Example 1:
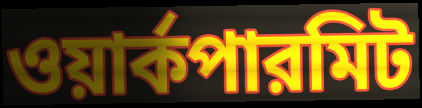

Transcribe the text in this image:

ওয়ার্কপারমিট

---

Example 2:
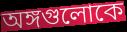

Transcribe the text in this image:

অঙ্গগুলোকে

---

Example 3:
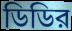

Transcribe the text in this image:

ডিডির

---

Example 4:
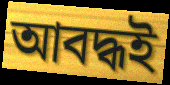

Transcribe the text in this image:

আবদ্ধই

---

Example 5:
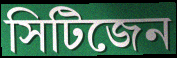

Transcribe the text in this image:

সিটিজেন